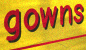
gowns